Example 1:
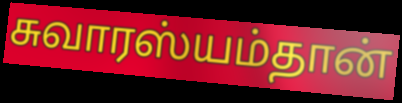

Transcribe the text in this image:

சுவாரஸ்யம்தான்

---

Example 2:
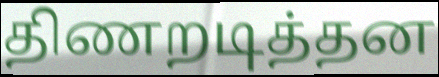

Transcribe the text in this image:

திணறடித்தன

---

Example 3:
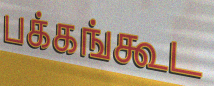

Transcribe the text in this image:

பக்கங்கூட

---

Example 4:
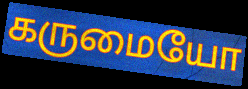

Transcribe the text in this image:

கருமையோ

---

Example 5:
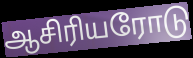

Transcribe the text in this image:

ஆசிரியரோடு